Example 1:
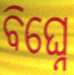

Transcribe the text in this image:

ବିଘ୍ନେ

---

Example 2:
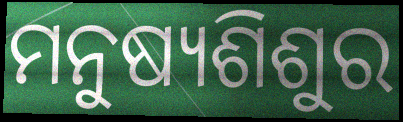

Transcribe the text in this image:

ମନୁଷ୍ୟଶିଶୁର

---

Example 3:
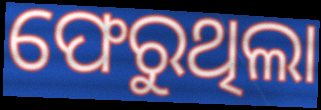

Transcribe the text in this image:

ଫେରୁଥିଲା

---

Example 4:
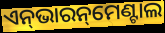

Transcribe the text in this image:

ଏନ୍‌ଭାରନ୍‌ମେଣ୍ଟାଲ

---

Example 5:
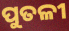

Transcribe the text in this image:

ପୁତଳୀ